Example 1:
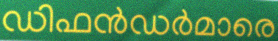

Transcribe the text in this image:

ഡിഫൻഡർമാരെ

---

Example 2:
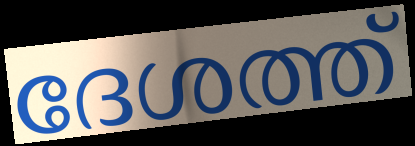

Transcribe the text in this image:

ദേശത്ത്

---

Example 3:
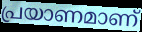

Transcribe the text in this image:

പ്രയാണമാണ്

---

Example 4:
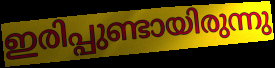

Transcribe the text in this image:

ഇരിപ്പുണ്ടായിരുന്നു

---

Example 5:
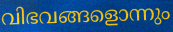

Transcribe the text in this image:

വിഭവങ്ങളൊന്നും